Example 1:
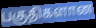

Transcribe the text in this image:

பகுதிகளான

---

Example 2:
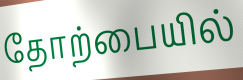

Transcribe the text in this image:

தோற்பையில்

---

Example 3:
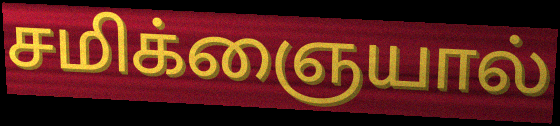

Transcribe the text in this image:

சமிக்ஞையால்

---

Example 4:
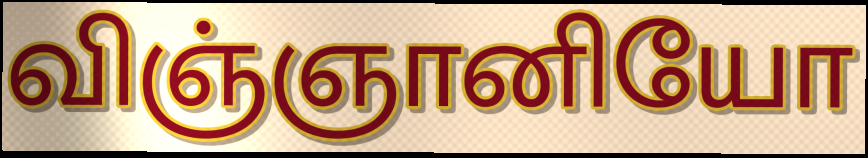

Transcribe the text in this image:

விஞ்ஞானியோ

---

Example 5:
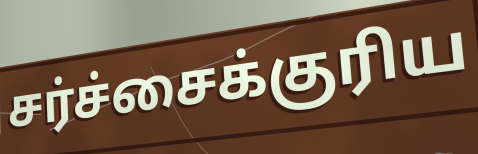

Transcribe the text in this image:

சர்ச்சைக்குரிய